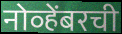
नोव्हेंबरची